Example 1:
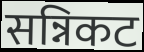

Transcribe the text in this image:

सन्निकट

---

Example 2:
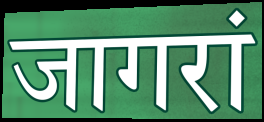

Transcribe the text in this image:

जागरां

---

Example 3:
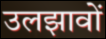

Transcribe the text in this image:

उलझावों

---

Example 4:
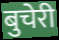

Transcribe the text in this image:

बुचेरी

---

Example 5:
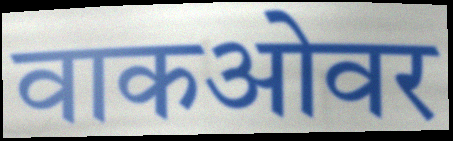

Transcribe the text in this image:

वाकओवर